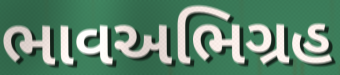
ભાવઅભિગ્રહ